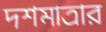
দশমাত্রার